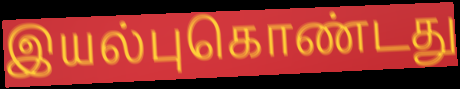
இயல்புகொண்டது